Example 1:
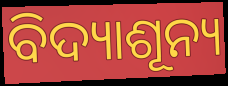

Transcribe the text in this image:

ବିଦ୍ୟାଶୂନ୍ୟ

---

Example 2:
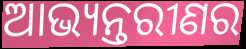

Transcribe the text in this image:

ଆଭ୍ୟନ୍ତରୀଣର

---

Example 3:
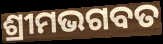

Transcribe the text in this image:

ଶ୍ରୀମଭଗବତ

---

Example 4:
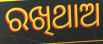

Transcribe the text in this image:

ରଖିଥାଅ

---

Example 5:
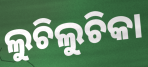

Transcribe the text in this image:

ଲୁଚିଲୁଚିକା